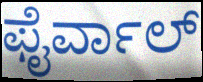
ಫೈರ್ವಾಲ್